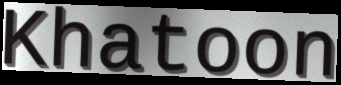
Khatoon